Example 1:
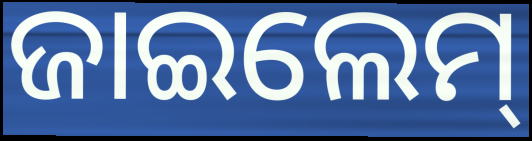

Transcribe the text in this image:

ଜାଇଲେମ୍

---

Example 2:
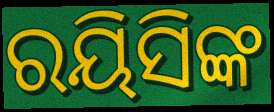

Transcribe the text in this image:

ରୟିସିଙ୍କ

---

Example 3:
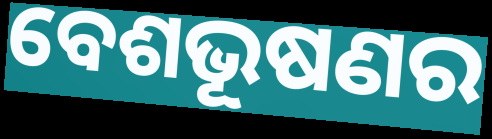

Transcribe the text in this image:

ବେଶଭୂଷଣର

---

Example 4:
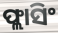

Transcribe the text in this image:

ଫ୍ଲାସିଂ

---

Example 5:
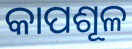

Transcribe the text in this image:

କାପଶୂଳ